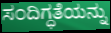
ಸಂದಿಗ್ಧತೆಯನ್ನು